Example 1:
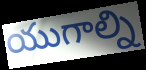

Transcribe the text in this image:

యుగాల్ని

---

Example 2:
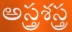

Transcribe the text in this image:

అస్త్రశస్త్ర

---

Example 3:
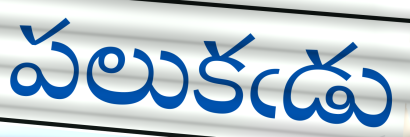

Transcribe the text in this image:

పలుకఁడు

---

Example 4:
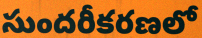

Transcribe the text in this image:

సుందరీకరణలో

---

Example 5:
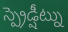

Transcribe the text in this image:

స్ప్రెడ్షీట్ను